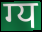
ग्य